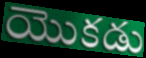
యొకడు